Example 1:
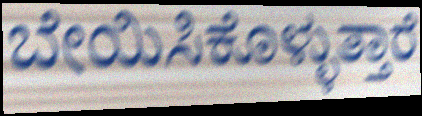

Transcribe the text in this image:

ಬೇಯಿಸಿಕೊಳ್ಳುತ್ತಾರೆ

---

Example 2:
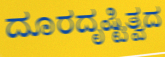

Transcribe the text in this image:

ದೂರದೃಷ್ಟಿತ್ವದ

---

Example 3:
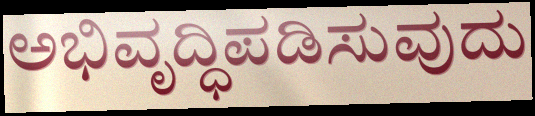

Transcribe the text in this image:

ಅಭಿವೃದ್ಧಿಪಡಿಸುವುದು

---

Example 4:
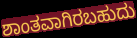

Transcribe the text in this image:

ಶಾಂತವಾಗಿರಬಹುದು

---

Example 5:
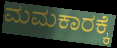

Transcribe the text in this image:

ಮಮಕಾರಕ್ಕೆ